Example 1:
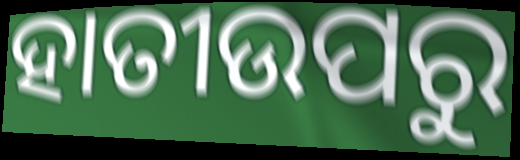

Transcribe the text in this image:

ହାତୀଉପରୁ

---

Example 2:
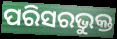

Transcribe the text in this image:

ପରିସରଭୁକ୍ତ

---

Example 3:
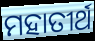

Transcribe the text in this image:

ମହାତୀର୍ଥ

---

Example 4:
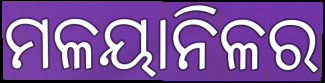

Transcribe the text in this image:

ମଳୟାନିଳର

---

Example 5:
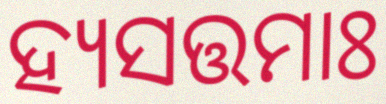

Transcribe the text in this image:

ହ୍ୟସତ୍ତମାଃ